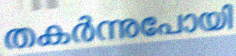
തകർന്നുപോയി